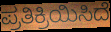
ಪ್ರತಿಕ್ರಿಯಿಸಿದೆ